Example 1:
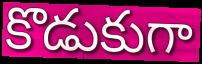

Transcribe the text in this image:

కొడుకుగా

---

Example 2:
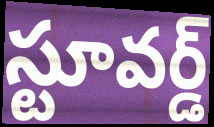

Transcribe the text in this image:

స్టూవర్డ్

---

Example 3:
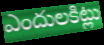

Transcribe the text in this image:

ఎందులకిట్లు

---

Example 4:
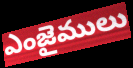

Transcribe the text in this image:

ఎంజైములు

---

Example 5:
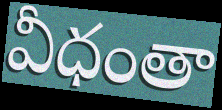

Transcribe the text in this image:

వీధంతా